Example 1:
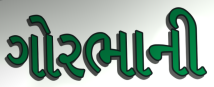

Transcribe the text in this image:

ગોરભાની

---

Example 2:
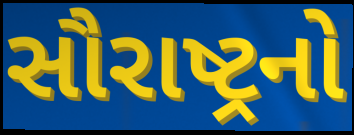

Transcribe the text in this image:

સૌરાષ્ટ્રનો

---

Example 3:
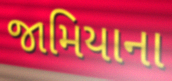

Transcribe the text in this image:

જામિયાના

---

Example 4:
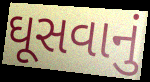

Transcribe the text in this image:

ઘૂસવાનું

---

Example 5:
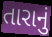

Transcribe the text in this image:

તારાનું